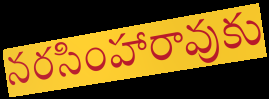
నరసింహారావుకు